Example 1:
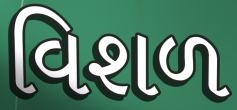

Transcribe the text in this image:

વિશળ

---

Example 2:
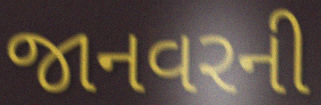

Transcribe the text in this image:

જાનવરની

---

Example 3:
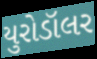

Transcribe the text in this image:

યુરોડૉલર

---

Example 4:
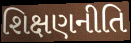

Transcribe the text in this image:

શિક્ષણનીતિ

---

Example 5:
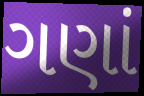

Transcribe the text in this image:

ગણાં